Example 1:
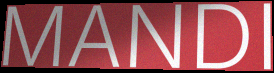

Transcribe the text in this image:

MANDI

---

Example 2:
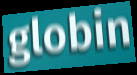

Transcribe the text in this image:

globin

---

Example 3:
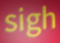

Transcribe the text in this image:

sigh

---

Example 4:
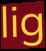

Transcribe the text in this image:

lig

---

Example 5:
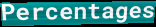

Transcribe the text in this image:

Percentages